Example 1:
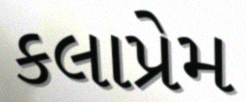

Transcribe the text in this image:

કલાપ્રેમ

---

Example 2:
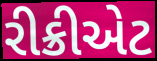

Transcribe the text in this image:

રીક્રીએટ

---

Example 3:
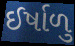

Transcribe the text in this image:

ઈર્ષાળુ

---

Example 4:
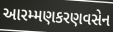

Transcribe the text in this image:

આરમ્મણકરણવસેન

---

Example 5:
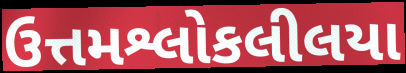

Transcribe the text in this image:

ઉત્તમશ્લોકલીલયા